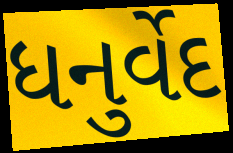
ધનુર્વેદ